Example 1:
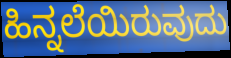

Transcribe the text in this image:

ಹಿನ್ನಲೆಯಿರುವುದು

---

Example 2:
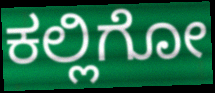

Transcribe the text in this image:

ಕಲ್ಲಿಗೋ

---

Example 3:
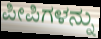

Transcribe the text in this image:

ಪೀಪಿಗಳನ್ನು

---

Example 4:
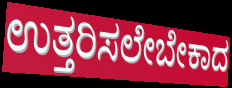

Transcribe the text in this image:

ಉತ್ತರಿಸಲೇಬೇಕಾದ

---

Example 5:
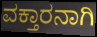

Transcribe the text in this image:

ವಕ್ತಾರನಾಗಿ